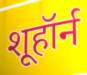
शूहॉर्न